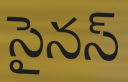
సైనస్